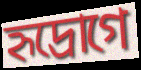
হৃদ্রোগে